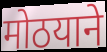
मोठयाने